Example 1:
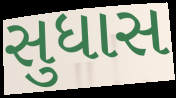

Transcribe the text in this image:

સુધાસ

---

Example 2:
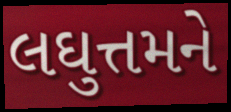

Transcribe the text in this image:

લઘુત્તમને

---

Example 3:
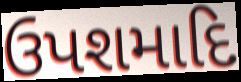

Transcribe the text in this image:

ઉપશમાદિ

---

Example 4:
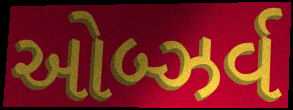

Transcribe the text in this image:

ઓબ્ઝર્વ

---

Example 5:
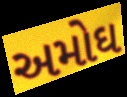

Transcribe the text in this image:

અમોઘ